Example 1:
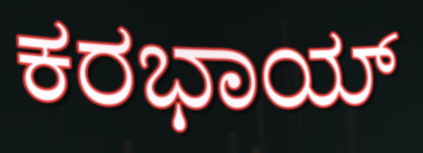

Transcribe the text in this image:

ಕರಭಾಯ್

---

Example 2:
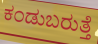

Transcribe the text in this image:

ಕಂಡುಬರುತ್ತೆ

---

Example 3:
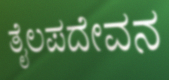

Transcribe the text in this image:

ತೈಲಪದೇವನ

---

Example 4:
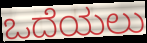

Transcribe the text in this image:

ಒದೆಯಲು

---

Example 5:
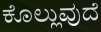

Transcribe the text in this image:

ಕೊಲ್ಲುವುದೆ